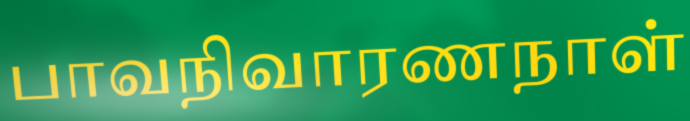
பாவநிவாரணநாள்